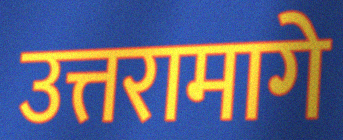
उत्तरामागे